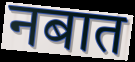
नबात